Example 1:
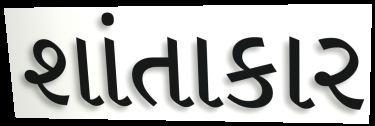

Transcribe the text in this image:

શાંતાકાર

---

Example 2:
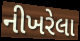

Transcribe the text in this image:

નીખરેલા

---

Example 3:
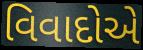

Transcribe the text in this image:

વિવાદોએ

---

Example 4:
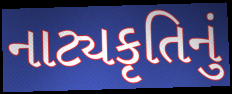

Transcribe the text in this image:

નાટ્યકૃતિનું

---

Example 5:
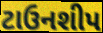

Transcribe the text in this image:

ટાઉનશીપ